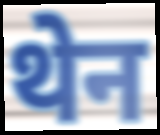
थेन